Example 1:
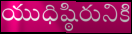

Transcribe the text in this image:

యుధిష్ఠిరునికి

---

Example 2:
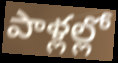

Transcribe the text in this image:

పాళ్లల్లో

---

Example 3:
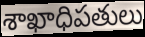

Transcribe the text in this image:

శాఖాధిపతులు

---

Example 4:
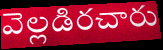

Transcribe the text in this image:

వెల్లడిరచారు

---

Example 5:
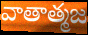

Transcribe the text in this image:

వాతాత్మజ